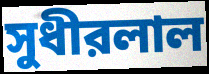
সুধীরলাল